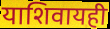
याशिवायही